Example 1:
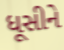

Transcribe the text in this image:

ધૂસીને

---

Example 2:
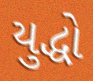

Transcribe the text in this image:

યુદ્ધો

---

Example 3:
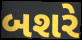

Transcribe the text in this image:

બશરે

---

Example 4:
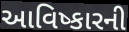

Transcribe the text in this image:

આવિષ્કારની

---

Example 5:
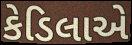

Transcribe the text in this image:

કેડિલાએ